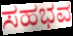
ಸಹಭವ